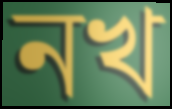
নখ